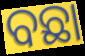
ବଛା